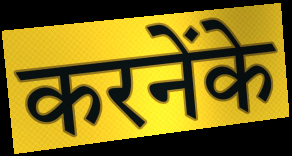
करनेंके